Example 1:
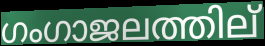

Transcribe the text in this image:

ഗംഗാജലത്തില്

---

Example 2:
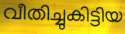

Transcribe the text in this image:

വീതിച്ചുകിട്ടിയ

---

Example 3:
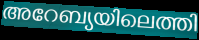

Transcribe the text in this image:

അറേബ്യയിലെത്തി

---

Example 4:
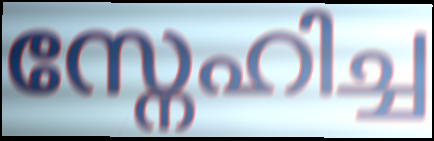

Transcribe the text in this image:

സ്നേഹിച്ച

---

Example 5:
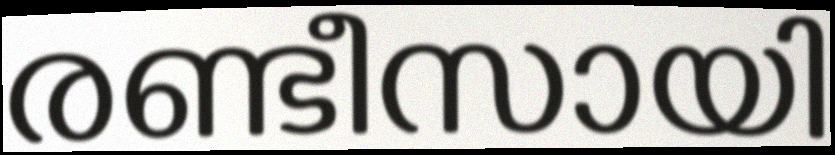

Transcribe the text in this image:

രണ്ടീസായി